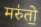
मरु॑तो॒